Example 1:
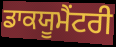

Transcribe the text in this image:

ਡਾਕਯੂਮੈਂਟਰੀ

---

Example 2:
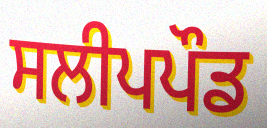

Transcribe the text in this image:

ਸਲੀਪਪੌਡ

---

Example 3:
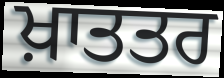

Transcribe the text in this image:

ਖ਼ਾਤਤਰ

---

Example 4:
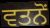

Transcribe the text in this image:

ਵਤਨੋਂ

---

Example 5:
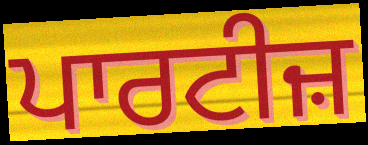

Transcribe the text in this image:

ਪਾਰਟੀਜ਼